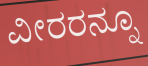
ವೀರರನ್ನೂ